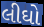
લીઘો